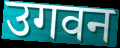
उगवन